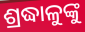
ଶ୍ରଦ୍ଧାଳୁଙ୍କୁ